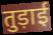
तुड़ाई